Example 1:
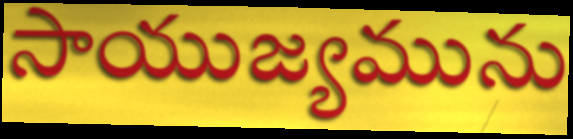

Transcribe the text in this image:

సాయుజ్యమును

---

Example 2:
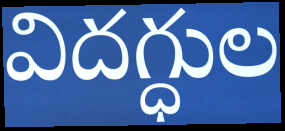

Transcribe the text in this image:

విదగ్ధుల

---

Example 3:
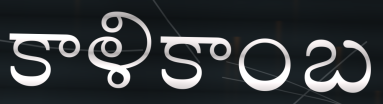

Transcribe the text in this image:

కాళికాంబ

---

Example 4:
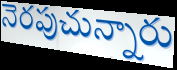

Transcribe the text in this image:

నెరపుచున్నారు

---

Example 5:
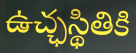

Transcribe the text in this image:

ఉచ్ఛస్థితికి